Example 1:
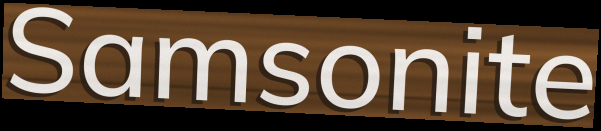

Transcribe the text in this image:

Samsonite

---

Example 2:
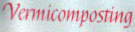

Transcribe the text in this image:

Vermicomposting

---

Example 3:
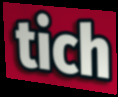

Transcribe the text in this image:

tich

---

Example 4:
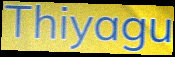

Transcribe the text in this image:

Thiyagu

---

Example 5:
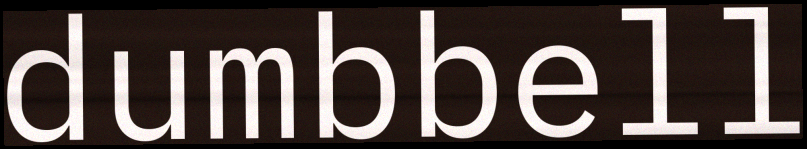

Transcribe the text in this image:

dumbbell